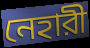
নেহারী